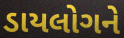
ડાયલોગને